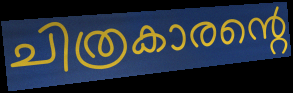
ചിത്രകാരന്റെ